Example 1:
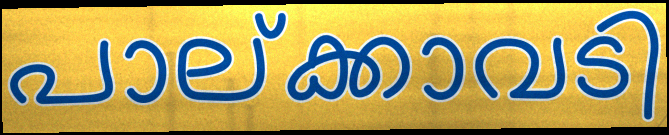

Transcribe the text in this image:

പാല്ക്കാവടി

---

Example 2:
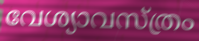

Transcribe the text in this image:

വേശ്യാവസ്ത്രം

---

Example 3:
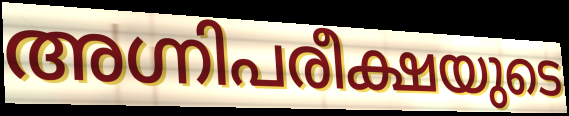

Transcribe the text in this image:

അഗ്നിപരീക്ഷയുടെ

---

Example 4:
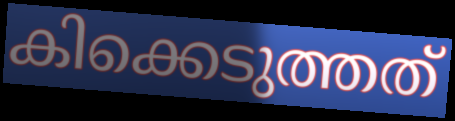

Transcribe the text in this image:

കിക്കെടുത്തത്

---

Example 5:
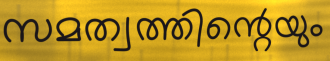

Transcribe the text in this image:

സമത്വത്തിന്റെയും